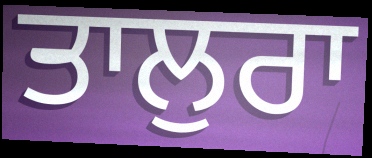
ਤਾਲੁਰਾ